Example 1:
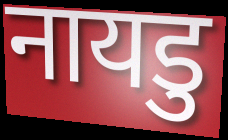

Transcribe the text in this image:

नायडु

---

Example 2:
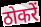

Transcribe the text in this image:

ठोकरें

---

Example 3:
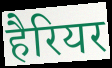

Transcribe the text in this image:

हैरियर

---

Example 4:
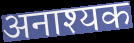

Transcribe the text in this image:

अनाश्यक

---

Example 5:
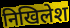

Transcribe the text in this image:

निखिलेश